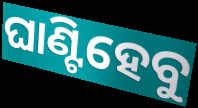
ଘାଣ୍ଟିହେବୁ